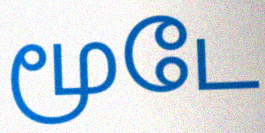
மூடே